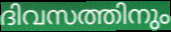
ദിവസത്തിനും